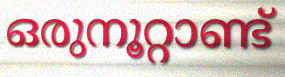
ഒരുനൂറ്റാണ്ട്